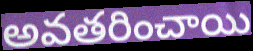
అవతరించాయి